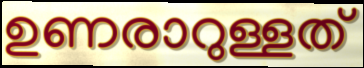
ഉണരാറുള്ളത്